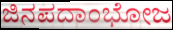
ಜಿನಪದಾಂಭೋಜ